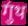
गुंथ